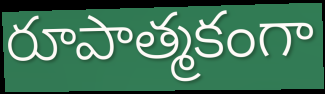
రూపాత్మకంగా